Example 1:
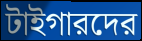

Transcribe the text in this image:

টাইগারদের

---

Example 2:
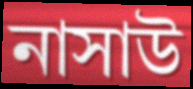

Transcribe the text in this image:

নাসাউ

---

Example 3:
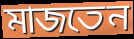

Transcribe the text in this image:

মাজতেন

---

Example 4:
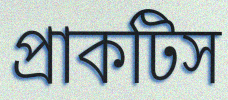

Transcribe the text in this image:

প্রাকটিস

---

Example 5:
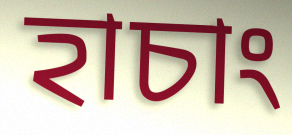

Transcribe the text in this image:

হাচাং